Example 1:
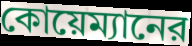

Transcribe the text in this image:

কোয়েম্যানের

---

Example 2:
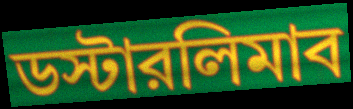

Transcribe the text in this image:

ডস্টারলিমাব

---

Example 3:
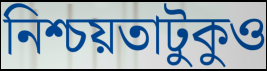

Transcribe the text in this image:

নিশ্চয়তাটুকুও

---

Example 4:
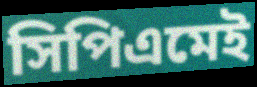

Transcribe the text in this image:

সিপিএমেই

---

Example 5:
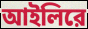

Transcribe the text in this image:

আইলিরে